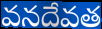
వనదేవత